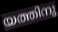
യത്തിനു